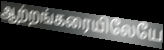
ஆற்றங்கரையிலேயே